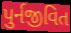
પુર્નજીવિત